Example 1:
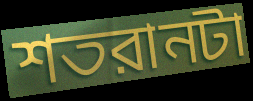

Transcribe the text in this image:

শতরানটা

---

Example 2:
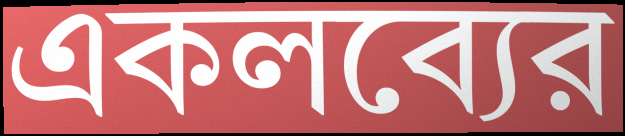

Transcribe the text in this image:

একলব্যের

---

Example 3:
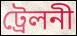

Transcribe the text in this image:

ট্রেলনী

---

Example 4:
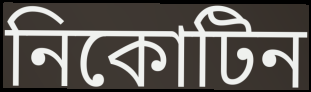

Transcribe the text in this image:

নিকোটিন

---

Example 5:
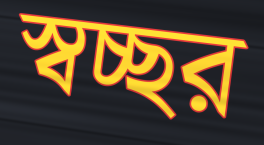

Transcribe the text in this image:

স্বচ্ছর